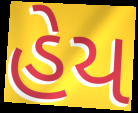
હેય